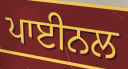
ਪਾਈਨਲ